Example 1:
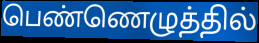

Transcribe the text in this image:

பெண்ணெழுத்தில்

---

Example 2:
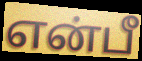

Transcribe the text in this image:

என்பீ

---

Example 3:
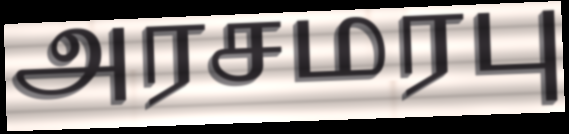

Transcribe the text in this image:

அரசமரபு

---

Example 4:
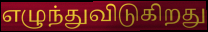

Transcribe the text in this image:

எழுந்துவிடுகிறது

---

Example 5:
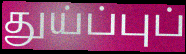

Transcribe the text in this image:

துய்ப்புப்